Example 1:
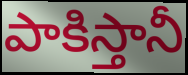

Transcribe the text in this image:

పాకిస్తానీ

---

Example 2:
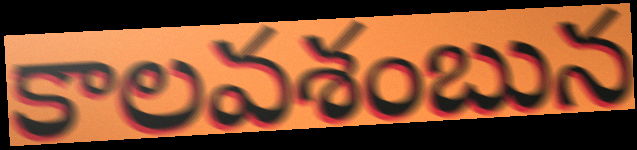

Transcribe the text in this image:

కాలవశంబున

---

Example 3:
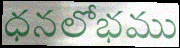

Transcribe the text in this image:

ధనలోభము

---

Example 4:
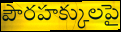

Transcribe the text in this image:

పౌరహక్కులపై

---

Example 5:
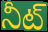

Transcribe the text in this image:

నీట్